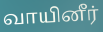
வாயினீர்